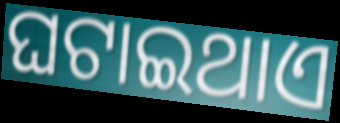
ଘଟାଇଥାଏ